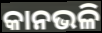
କାନଭଳି